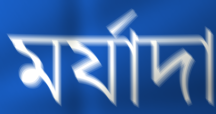
মৰ্যাদা